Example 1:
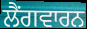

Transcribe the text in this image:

ਲੈਂਗਵਾਰਨ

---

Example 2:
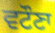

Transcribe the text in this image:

ਵਟੌਣਾ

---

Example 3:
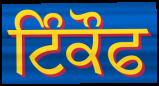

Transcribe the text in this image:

ਟਿੰਕੌਫ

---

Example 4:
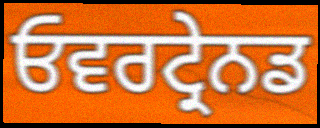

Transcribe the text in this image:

ਓਵਰਟ੍ਰੇਨਡ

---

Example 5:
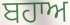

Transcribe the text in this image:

ਬਹਾਅ